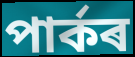
পাৰ্কৰ